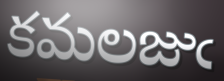
కమలజుఁ